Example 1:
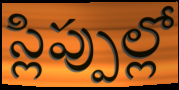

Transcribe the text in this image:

స్లిప్పుల్లో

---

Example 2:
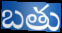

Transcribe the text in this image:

బతు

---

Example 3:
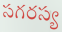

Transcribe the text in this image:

సగరస్య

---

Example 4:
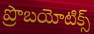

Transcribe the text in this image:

ప్రొబయోటిక్స్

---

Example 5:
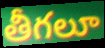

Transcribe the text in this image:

తీగలూ